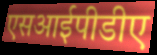
एसआईपीडीए